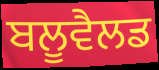
ਬਲੂਵੈਲਡ